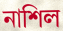
নাশিল